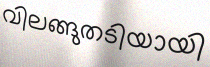
വിലങ്ങുതടിയായി